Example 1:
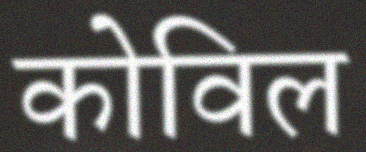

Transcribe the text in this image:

कोविल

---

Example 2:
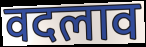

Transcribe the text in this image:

वदलाव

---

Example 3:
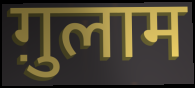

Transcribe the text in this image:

ग़ुलाम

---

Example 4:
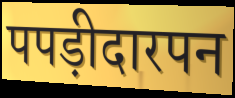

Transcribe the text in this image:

पपड़ीदारपन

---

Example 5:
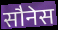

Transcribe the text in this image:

सौनेस